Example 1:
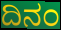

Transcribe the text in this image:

ದಿನಂ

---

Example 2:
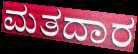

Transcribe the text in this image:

ಮತದಾರ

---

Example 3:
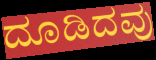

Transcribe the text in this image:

ದೂಡಿದವು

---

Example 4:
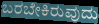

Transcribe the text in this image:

ಬರಬೇಕಿರುವುದು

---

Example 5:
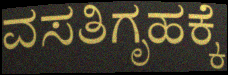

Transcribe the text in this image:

ವಸತಿಗೃಹಕ್ಕೆ